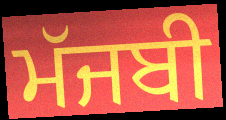
ਮੱਜਬੀ